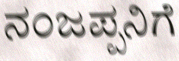
ನಂಜಪ್ಪನಿಗೆ